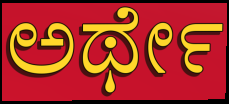
ಅರ್ಥೇ